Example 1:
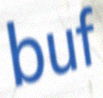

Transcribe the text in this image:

buf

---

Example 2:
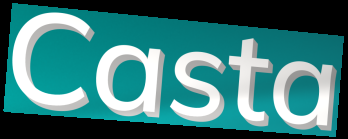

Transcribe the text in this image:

Casta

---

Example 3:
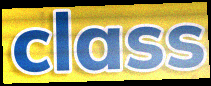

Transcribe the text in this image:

class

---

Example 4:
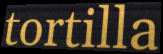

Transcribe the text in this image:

tortilla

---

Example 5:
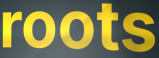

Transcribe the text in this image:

roots